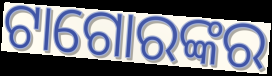
ଟାଗୋରଙ୍କର